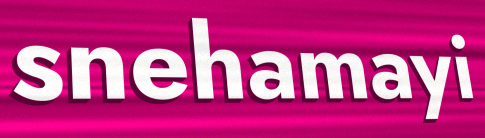
snehamayi